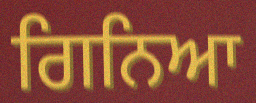
ਗਿਨਿਆ